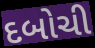
દબોચી